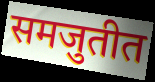
समजुतीत